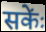
सकेंः